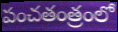
పంచతంత్రంలో